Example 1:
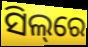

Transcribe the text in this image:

ସିଲ୍‌ରେ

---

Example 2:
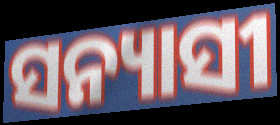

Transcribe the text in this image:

ସନ୍ୟାସୀ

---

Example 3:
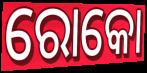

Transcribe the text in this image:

ରୋକୋ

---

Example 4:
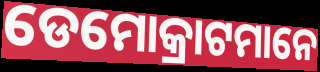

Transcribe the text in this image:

ଡେମୋକ୍ରାଟମାନେ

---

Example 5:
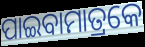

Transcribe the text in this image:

ପାଇବାମାତ୍ରକେ